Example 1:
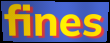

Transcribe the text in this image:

fines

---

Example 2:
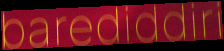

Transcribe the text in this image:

barediddiri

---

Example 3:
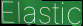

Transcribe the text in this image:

Elastic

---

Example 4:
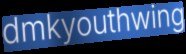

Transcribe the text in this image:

dmkyouthwing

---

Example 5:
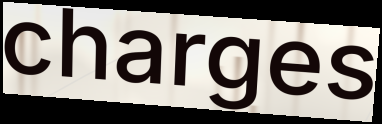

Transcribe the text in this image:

charges